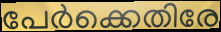
പേർക്കെതിരേ